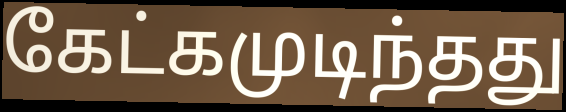
கேட்கமுடிந்தது